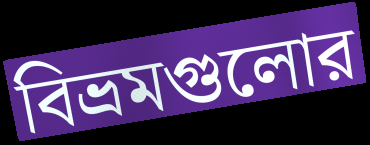
বিভ্রমগুলোর